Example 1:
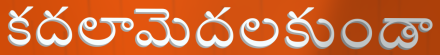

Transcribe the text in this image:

కదలామెదలకుండా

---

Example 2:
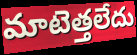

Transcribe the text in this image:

మాటెత్తలేదు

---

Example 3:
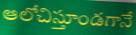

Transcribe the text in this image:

ఆలోచిస్తూండగానే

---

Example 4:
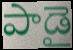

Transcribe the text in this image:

పాడై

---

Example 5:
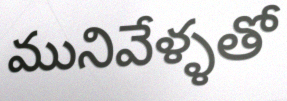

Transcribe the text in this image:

మునివేళ్ళతో